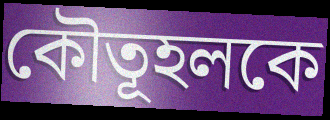
কৌতূহলকে